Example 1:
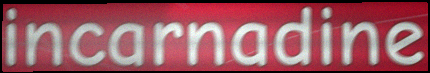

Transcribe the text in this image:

incarnadine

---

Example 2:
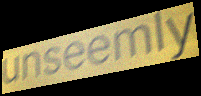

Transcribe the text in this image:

unseemly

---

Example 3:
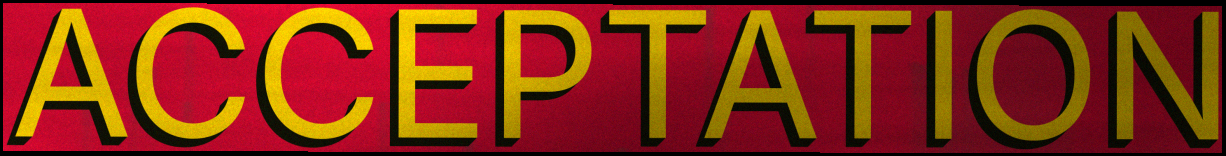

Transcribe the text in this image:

ACCEPTATION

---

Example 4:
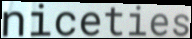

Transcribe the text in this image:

niceties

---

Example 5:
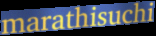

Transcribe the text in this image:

marathisuchi